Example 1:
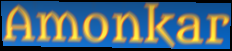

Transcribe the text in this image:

Amonkar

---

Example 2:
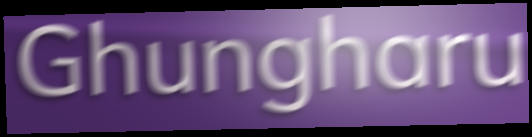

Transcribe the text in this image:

Ghungharu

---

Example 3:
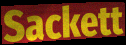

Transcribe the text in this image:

Sackett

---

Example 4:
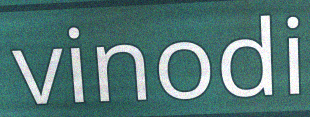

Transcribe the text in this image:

vinodi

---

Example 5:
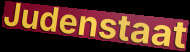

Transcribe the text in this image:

Judenstaat